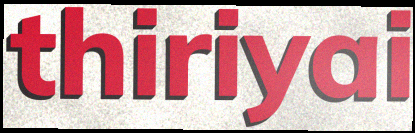
thiriyai